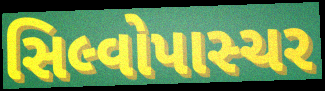
સિલ્વોપાસ્ચર